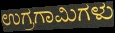
ಉಗ್ರಗಾಮಿಗಳು